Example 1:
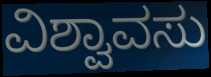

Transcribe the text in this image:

ವಿಶ್ವಾವಸು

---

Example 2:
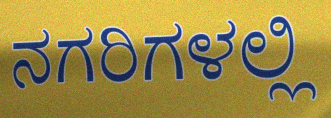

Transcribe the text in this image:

ನಗರಿಗಳಲ್ಲಿ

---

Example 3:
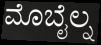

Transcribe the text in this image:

ಮೊಬೈಲ್ನ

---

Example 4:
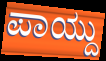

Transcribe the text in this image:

ಪಾಯ್ದು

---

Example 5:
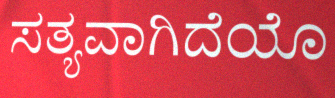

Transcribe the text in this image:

ಸತ್ಯವಾಗಿದೆಯೊ